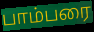
பாம்பரை